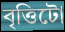
বৃত্তিটো